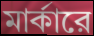
মার্কারে